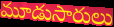
మూడుసారులు